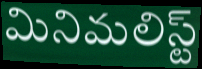
మినిమలిస్ట్